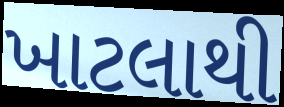
ખાટલાથી